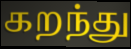
கறந்து